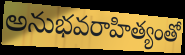
అనుభవరాహిత్యంతో